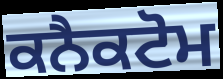
ਕਨੈਕਟੋਮ